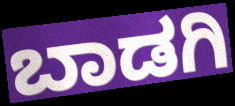
ಬಾಡಗಿ